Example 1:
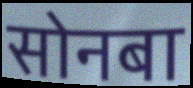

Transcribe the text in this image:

सोनबा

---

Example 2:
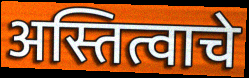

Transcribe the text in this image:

अस्तित्वाचे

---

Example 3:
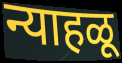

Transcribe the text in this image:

न्याहळू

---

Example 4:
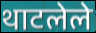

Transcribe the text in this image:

थाटलेले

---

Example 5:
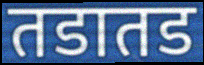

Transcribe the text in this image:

तडातड